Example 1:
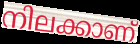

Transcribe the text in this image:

നിലക്കാണ്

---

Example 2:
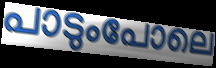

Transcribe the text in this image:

പാടുംപോലെ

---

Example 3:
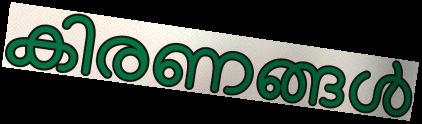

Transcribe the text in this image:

കിരണങ്ങൾ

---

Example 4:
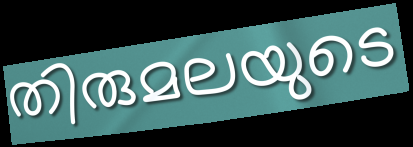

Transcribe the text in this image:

തിരുമലയുടെ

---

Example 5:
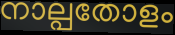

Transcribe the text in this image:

നാല്പതോളം